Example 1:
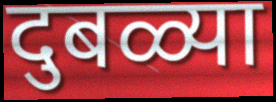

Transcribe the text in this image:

दुबळ्या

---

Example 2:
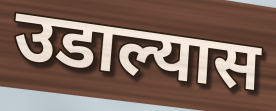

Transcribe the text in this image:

उडाल्यास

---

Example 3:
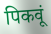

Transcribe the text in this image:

पिकवूं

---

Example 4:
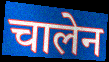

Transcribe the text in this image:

चालेन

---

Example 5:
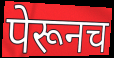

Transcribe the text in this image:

पेरूनच